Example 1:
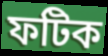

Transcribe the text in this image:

ফটিক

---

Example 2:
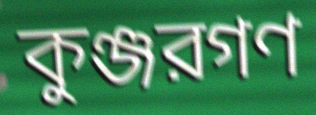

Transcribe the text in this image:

কুঞ্জরগণ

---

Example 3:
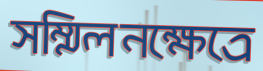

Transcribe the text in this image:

সম্মিলনক্ষেত্রে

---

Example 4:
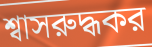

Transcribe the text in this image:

শ্বাসরুদ্ধকর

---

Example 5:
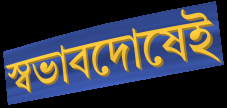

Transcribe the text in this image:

স্বভাবদোষেই